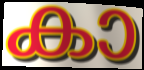
കാ